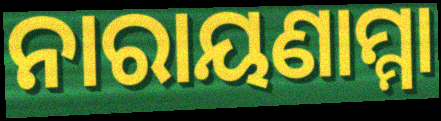
ନାରାୟଣାମ୍ମା